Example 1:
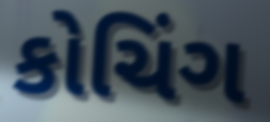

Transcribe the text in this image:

કોચિંગ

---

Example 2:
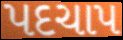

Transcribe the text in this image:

પદચાપ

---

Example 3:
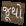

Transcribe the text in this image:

જૂથો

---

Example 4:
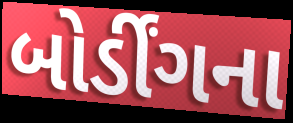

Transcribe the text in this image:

બોર્ડીંગના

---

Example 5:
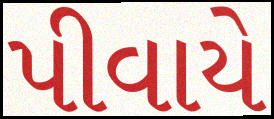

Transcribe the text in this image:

પીવાયે